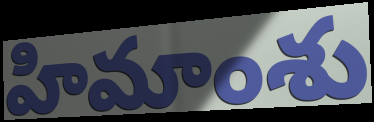
హిమాంశు